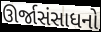
ઊર્જાસંસાધનો